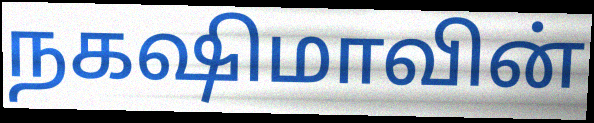
நகஷிமாவின்